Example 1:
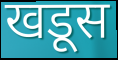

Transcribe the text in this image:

खडूस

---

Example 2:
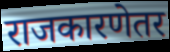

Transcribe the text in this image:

राजकारणेतर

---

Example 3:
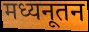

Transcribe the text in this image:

मध्यनूतन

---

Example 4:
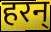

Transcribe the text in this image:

हरन्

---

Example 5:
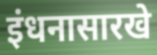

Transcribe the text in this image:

इंधनासारखे